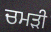
ਚਮਡ਼ੀ